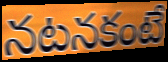
నటనకంటే